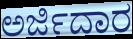
ಅರ್ಜಿದಾರ